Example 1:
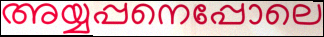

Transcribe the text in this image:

അയ്യപ്പനെപ്പോലെ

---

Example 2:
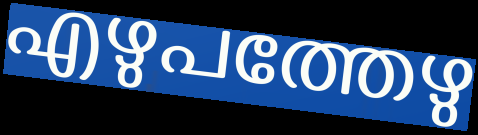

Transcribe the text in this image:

എഴുപത്തേഴു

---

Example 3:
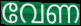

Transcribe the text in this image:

വേണ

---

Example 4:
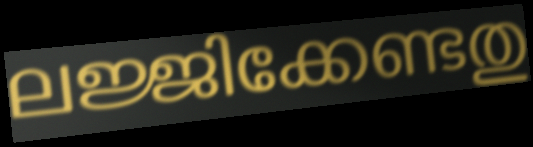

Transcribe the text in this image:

ലജ്ജിക്കേണ്ടതു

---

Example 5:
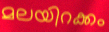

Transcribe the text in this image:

മലയിറക്കം